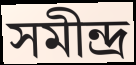
সমীন্দ্ৰ